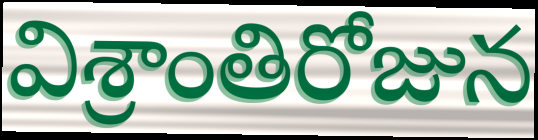
విశ్రాంతిరోజున